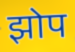
झोप